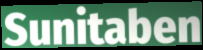
Sunitaben